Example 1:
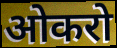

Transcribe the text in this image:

ओकरो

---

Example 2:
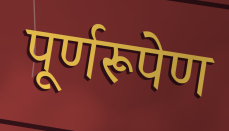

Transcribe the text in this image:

पूर्णरूपेण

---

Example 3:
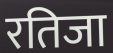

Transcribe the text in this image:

रतिजा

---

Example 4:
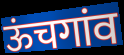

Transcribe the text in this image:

ऊंचगांव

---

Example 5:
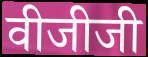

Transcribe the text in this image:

वीजीजी